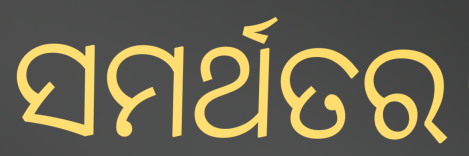
ସମର୍ଥତର